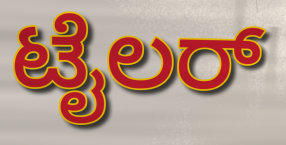
ಟೈಲರ್